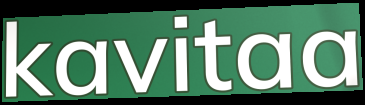
kavitaa